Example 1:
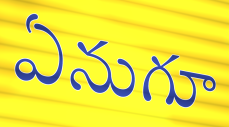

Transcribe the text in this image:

ఏనుగూ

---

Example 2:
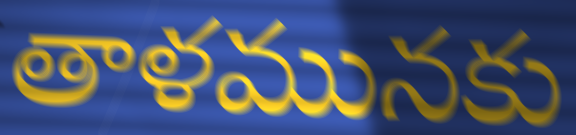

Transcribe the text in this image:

తాళమునకు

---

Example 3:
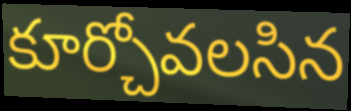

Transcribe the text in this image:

కూర్చోవలసిన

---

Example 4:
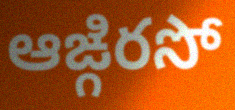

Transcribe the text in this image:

ఆఙ్గిరసో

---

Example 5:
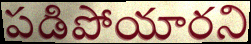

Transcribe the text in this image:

పడిపోయారని